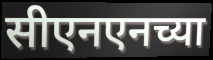
सीएनएनच्या